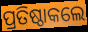
ପ୍ରତିଷ୍ଠାକଲେ